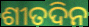
ଶୀତଦିନ